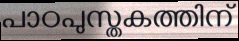
പാഠപുസ്തകത്തിന്